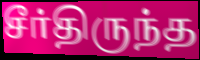
சீர்திருந்த